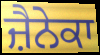
ਜ਼ੈਨੇਕਾ